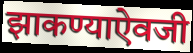
झाकण्याऐवजी